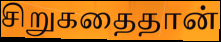
சிறுகதைதான்